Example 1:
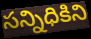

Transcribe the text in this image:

సన్నిధికిని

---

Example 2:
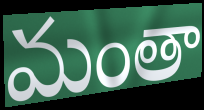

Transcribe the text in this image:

మంతా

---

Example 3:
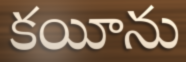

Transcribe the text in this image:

కయీను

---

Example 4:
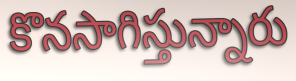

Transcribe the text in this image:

కొనసాగిస్తున్నారు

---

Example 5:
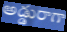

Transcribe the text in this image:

అడ్డురాగా